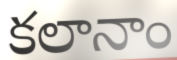
కలానాం